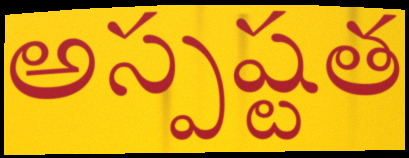
అస్పష్టత